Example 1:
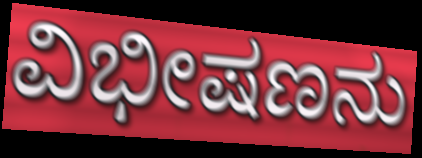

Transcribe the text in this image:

ವಿಭೀಷಣನು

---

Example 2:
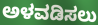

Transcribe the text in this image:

ಅಳವಡಿಸಲು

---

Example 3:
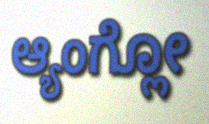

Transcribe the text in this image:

ಆ್ಯಂಗ್ಲೋ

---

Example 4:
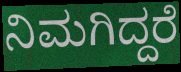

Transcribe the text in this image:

ನಿಮಗಿದ್ದರೆ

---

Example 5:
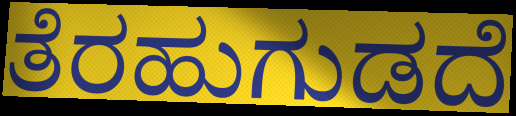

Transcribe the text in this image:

ತೆರಹುಗುಡದೆ